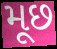
મૂછ